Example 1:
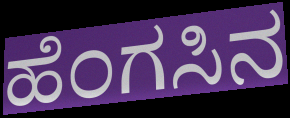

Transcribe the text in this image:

ಹೆಂಗಸಿನ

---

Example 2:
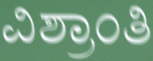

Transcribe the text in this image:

ವಿಶ್ರಾಂತಿ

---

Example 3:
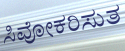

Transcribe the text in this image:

ಸಿವೋಕರಿಸುತ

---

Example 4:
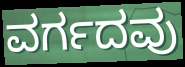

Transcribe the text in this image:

ವರ್ಗದವು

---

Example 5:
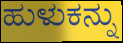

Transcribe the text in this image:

ಹುಳುಕನ್ನು